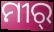
ମୀର୍